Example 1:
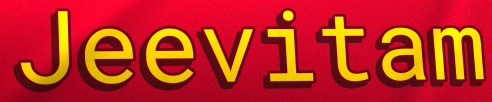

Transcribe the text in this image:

Jeevitam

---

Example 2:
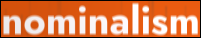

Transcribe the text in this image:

nominalism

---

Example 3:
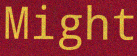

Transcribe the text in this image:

Might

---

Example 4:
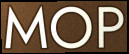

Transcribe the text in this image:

MOP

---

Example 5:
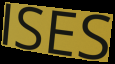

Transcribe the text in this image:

ISES